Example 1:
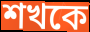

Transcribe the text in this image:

শখকে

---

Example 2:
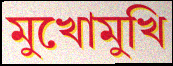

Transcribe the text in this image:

মুখোমুখি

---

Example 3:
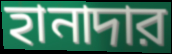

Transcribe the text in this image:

হানাদার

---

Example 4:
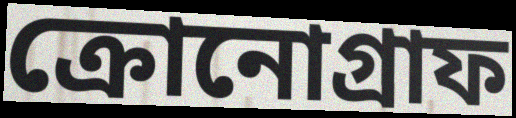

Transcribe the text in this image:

ক্রোনোগ্রাফ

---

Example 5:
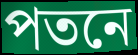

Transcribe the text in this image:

পতনে